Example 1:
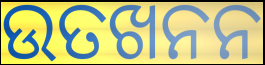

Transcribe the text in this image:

ଉତଖନନ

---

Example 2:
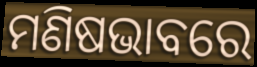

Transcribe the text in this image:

ମଣିଷଭାବରେ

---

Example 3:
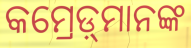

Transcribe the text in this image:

କମ୍ରେଡ଼୍‍ମାନଙ୍କ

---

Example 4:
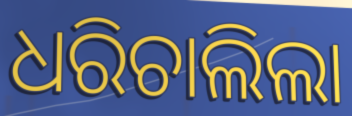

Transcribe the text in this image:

ଧରିଚାଲିଲା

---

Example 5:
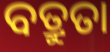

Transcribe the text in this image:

ବତ୍ରୁତା